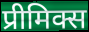
प्रीमिक्स